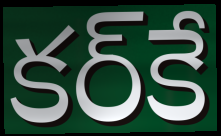
కర్‌కే